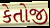
કેતોજી